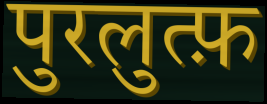
पुरलुत्फ़